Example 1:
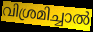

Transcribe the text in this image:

വിശ്രമിച്ചാൽ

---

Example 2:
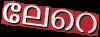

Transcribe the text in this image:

ലേറെ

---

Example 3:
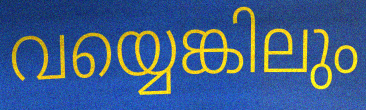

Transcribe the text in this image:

വയ്യെങ്കിലും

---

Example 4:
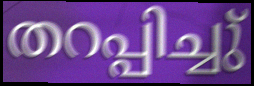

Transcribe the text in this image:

തറപ്പിച്ചു്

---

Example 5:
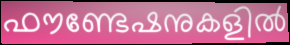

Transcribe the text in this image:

ഫൗണ്ടേഷനുകളിൽ